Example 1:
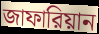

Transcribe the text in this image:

জাফারিয়ান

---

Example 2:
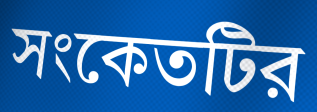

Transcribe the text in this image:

সংকেতটির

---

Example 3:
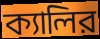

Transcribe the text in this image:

ক্যালির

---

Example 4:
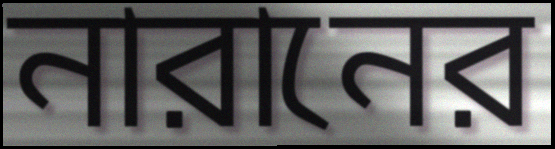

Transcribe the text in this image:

নারানের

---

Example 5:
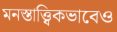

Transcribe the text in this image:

মনস্তাত্ত্বিকভাবেও